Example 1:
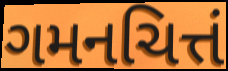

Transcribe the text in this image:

ગમનચિત્તં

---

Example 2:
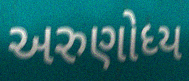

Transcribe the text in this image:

અરુણોધ્ય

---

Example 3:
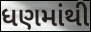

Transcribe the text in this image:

ધણમાંથી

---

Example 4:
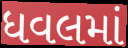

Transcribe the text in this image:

ધવલમાં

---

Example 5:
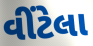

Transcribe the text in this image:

વીંટેલા